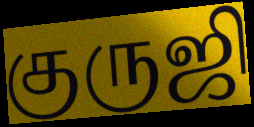
குருஜி